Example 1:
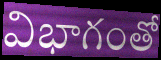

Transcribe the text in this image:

విభాగంతో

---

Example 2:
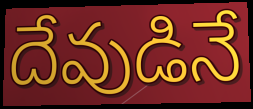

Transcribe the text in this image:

దేవుడినే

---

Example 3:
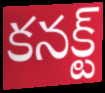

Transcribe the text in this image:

కనక్ట్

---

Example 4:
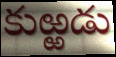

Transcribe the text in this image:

కుఱ్ఱడు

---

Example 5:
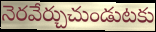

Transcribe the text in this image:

నెరవేర్చుచుండుటకు